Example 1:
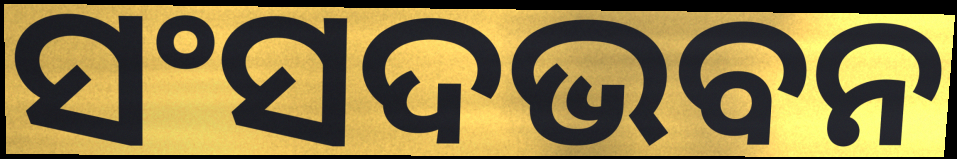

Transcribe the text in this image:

ସଂସଦଭବନ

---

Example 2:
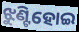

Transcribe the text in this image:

ଝୁଣ୍ଟିହୋଇ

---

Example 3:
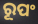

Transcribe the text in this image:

ରୂପଂ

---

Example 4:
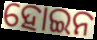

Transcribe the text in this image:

ହୋଇନ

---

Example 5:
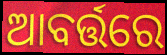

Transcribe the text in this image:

ଆବର୍ତ୍ତରେ